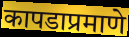
कापडाप्रमाणे